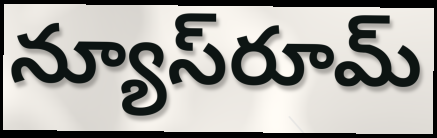
న్యూస్‌రూమ్